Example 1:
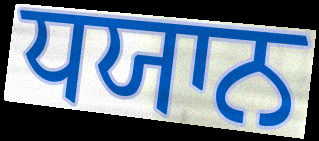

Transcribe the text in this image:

ਧਯਾਨ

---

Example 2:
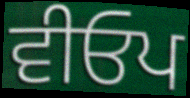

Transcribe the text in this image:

ਵੀਓਪ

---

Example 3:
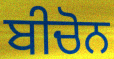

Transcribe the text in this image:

ਬੀਚੋਨ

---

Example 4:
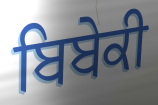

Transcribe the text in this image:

ਬਿਬੇਕੀ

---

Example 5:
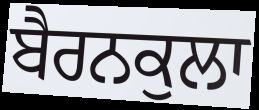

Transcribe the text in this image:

ਬੈਰਨਕੁਲਾ